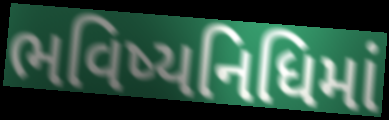
ભવિષ્યનિધિમાં